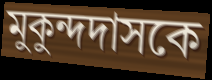
মুকুন্দদাসকে